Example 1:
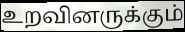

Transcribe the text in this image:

உறவினருக்கும்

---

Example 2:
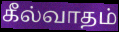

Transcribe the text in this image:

கீல்வாதம்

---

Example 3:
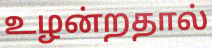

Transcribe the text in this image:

உழன்றதால்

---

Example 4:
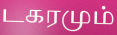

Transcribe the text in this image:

டகரமும்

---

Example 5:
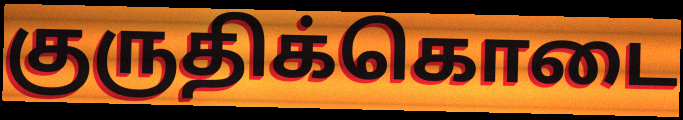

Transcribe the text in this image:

குருதிக்கொடை